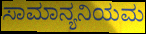
ಸಾಮಾನ್ಯನಿಯಮ